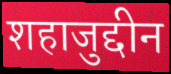
शहाजुद्दीन